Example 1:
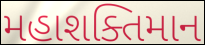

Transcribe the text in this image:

મહાશક્તિમાન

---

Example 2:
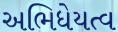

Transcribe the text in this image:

અભિધેયત્વ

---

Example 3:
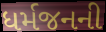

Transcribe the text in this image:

ધર્મજનની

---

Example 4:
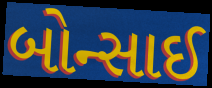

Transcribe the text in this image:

બોન્સાઈ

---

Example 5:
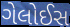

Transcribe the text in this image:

ગેલોઈસ